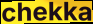
chekka